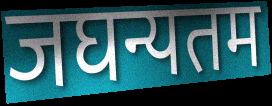
जघन्यतम